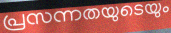
പ്രസന്നതയുടെയും